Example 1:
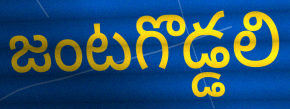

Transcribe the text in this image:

జంటగొడ్డలి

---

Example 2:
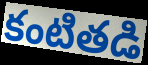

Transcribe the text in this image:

కంటితడి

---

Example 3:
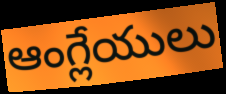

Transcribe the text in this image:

ఆంగ్లేయులు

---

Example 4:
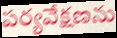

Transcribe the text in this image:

పర్యవేక్షణను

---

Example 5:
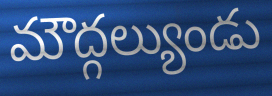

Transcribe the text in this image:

మౌద్గల్యుండు